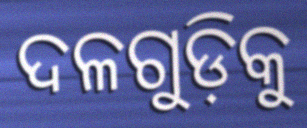
ଦଳଗୁଡ଼ିକୁ